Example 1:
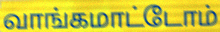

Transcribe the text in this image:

வாங்கமாட்டோம்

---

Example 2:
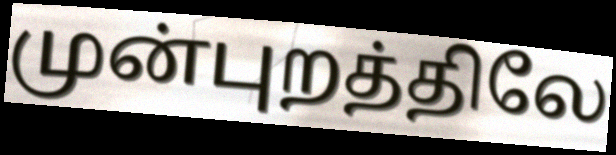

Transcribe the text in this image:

முன்புறத்திலே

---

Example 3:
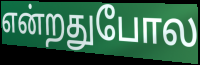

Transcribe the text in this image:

என்றதுபோல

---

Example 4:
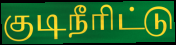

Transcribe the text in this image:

குடிநீரிட்டு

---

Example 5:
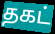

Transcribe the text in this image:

தகட்